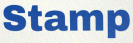
Stamp